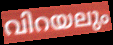
വിറയലും